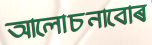
আলোচনাবোৰ